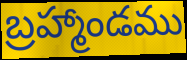
బ్రహ్మాండము